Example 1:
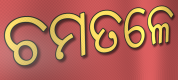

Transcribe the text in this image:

ଚମତଳେ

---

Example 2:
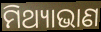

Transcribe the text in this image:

ମିଥ୍ୟାଭାଣ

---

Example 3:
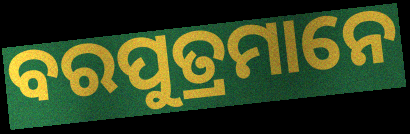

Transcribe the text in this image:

ବରପୁତ୍ରମାନେ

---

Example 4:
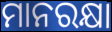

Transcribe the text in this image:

ମାନରକ୍ଷା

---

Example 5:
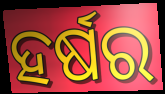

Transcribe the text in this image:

ହର୍ଷର